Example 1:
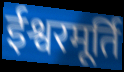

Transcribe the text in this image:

ईश्वरमूर्ति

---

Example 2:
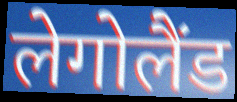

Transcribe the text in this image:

लेगोलैंड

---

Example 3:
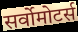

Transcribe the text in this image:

सर्वोमोटर्स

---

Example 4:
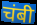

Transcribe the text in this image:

चंबी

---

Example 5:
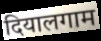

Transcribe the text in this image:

दियालगाम